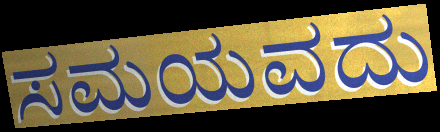
ಸಮಯವದು